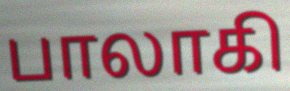
பாலாகி